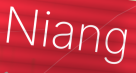
Niang